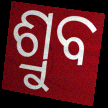
ଶ୍ରୁବ